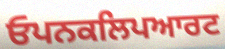
ਓਪਨਕਲਿਪਆਰਟ